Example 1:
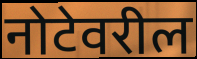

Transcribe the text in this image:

नोटेवरील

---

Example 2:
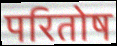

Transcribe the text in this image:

परितोष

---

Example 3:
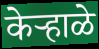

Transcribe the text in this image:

केऱ्हाळे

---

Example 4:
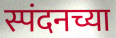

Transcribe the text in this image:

स्पंदनच्या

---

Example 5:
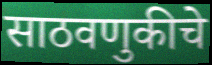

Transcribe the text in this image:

साठवणुकीचे